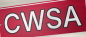
CWSA